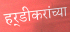
हर्डीकरांच्या